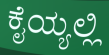
ಕೈಯ್ಯಲ್ಲಿ